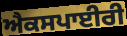
ਐਕਸਪਾਈਰੀ